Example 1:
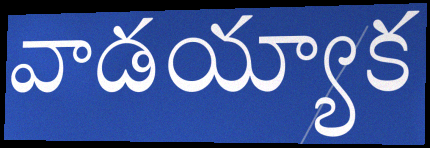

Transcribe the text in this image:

వాడయ్యాక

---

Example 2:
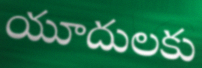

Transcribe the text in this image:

యూదులకు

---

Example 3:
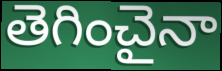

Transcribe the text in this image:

తెగించైనా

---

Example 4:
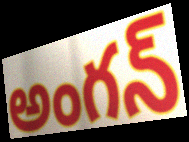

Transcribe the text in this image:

అంగన్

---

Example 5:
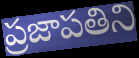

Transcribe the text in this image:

ప్రజాపతిని